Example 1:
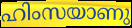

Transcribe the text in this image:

ഹിംസയാണു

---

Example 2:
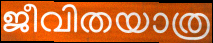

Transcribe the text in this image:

ജീവിതയാത്ര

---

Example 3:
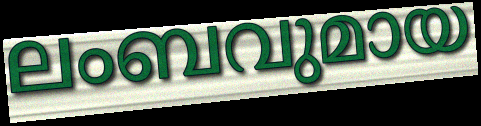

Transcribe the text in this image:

ലംബവുമായ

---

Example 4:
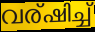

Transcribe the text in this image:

വര്ഷിച്ച്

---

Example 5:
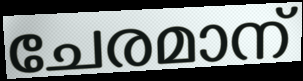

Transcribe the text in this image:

ചേരമാന്